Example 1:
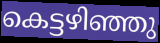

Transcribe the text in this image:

കെട്ടഴിഞ്ഞു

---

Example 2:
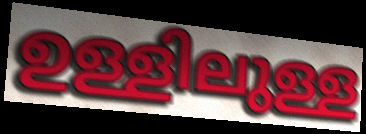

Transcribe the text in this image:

ഉള്ളിലുള്ള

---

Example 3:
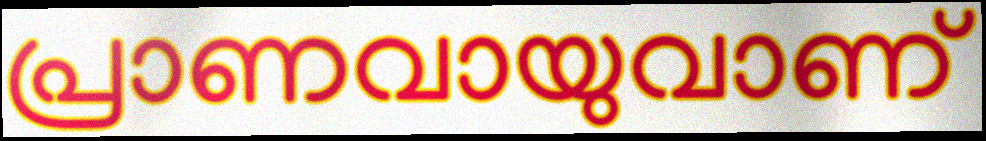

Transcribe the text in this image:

പ്രാണവായുവാണ്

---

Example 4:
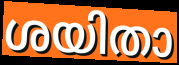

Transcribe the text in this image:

ശയിതാ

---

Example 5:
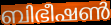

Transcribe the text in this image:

ബിഭീഷൺ